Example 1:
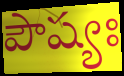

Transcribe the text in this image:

పౌష్యః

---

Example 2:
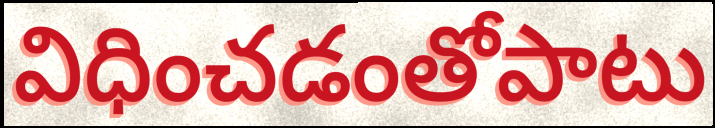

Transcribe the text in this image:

విధించడంతోపాటు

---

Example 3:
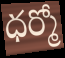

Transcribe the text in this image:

ధర్మో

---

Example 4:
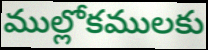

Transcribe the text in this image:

ముల్లోకములకు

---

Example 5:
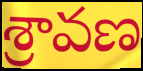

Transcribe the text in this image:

శ్రావణ